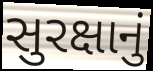
સુરક્ષાનું